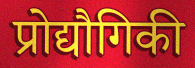
प्रोद्यौगिकी